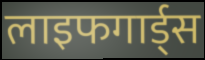
लाइफगार्ड्स